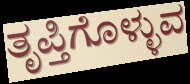
ತೃಪ್ತಿಗೊಳ್ಳುವ